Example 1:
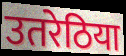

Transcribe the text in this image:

उतरेठिया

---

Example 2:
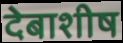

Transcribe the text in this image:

देबाशीष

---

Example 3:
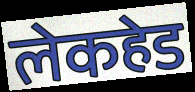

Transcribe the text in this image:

लेकहेड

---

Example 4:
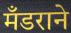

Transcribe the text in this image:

मँडराने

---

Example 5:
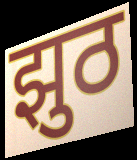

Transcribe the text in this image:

झुठ